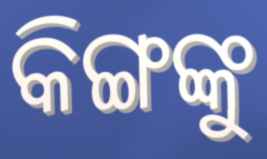
କିଙ୍ଗଙ୍କୁ